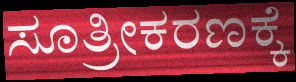
ಸೂತ್ರೀಕರಣಕ್ಕೆ